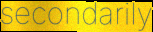
secondarily